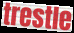
trestle